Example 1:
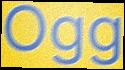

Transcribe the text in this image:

Ogg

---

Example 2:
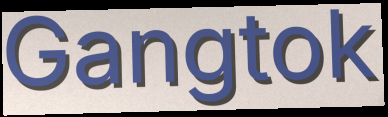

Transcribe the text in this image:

Gangtok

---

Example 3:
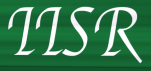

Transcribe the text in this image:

IISR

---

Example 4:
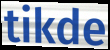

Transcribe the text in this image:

tikde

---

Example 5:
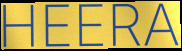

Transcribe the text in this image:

HEERA